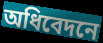
অধিবেদনে